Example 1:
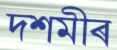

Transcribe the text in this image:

দশমীৰ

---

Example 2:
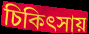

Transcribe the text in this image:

চিকিৎসায়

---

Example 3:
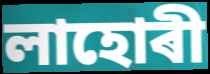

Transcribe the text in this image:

লাহোৰী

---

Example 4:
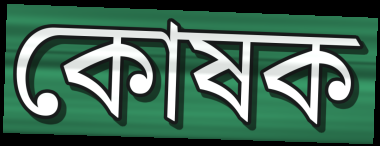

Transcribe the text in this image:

কোষক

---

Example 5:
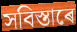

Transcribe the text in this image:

সবিস্তাৰে